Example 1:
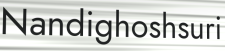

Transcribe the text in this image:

Nandighoshsuri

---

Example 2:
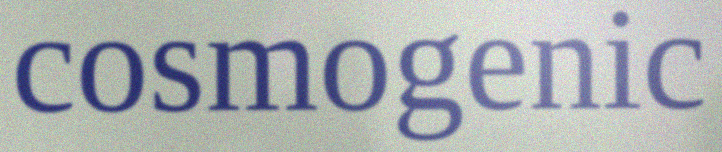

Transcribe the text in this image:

cosmogenic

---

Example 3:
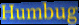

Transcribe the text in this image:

Humbug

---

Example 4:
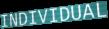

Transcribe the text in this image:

INDIVIDUAL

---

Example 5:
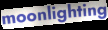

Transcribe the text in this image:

moonlighting